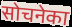
सोचनेका